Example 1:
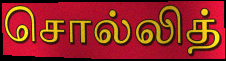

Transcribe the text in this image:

சொல்லித்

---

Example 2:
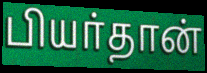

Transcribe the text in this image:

பியர்தான்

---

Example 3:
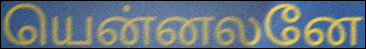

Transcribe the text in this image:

யென்னலனே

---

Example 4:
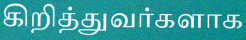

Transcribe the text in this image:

கிறித்துவர்களாக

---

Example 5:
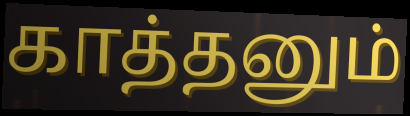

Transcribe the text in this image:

காத்தனும்